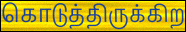
கொடுத்திருக்கிற